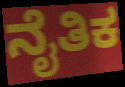
ನೈತಿಕ